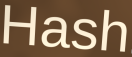
Hash